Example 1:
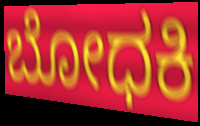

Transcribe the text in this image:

ಬೋಧಕಿ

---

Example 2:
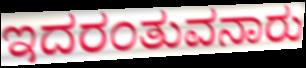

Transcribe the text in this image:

ಇದರಂತುವನಾರು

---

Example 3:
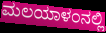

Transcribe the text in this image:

ಮಲಯಾಳಂನಲ್ಲಿ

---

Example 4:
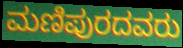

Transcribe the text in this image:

ಮಣಿಪುರದವರು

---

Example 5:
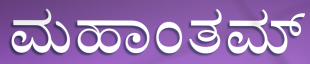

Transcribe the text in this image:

ಮಹಾಂತಮ್